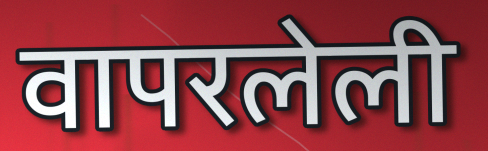
वापरलेली